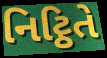
નિટ્ઠિતે